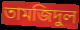
তামজিদুল